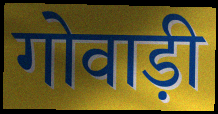
गोवाड़ी